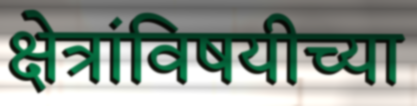
क्षेत्रांविषयीच्या